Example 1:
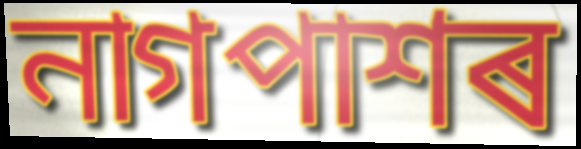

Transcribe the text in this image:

নাগপাশৰ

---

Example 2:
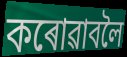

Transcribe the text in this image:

কৰোৱাবলৈ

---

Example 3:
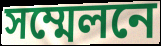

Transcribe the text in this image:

সম্মেলনে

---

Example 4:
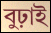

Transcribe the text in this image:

বুঢ়াই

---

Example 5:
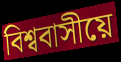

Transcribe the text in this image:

বিশ্ববাসীয়ে